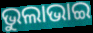
ଭୁଲାଭାଇ